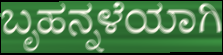
ಬೃಹನ್ನಳೆಯಾಗಿ